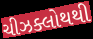
ચીઝક્લોથથી